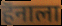
हॅनाला